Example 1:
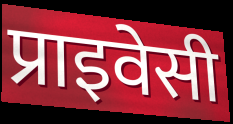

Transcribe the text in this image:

प्राइवेसी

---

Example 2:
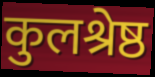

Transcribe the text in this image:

कुलश्रेष्ठ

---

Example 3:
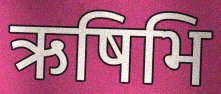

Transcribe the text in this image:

ऋषिभि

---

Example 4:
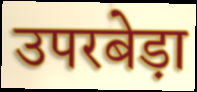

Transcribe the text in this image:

उपरबेड़ा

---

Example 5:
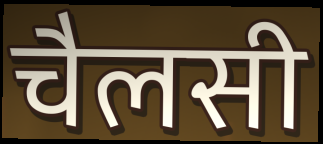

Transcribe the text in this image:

चैलसी